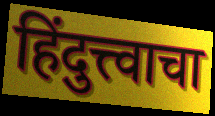
हिंदुत्त्वाचा